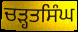
ਚੜ੍ਹਤਸਿੰਘ